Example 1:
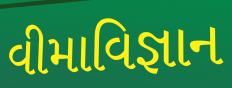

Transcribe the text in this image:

વીમાવિજ્ઞાન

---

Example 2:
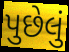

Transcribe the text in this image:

પુછેલું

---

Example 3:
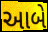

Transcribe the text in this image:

આબે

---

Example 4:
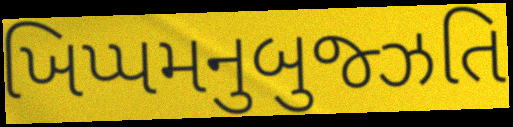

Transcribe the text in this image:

ખિપ્પમનુબુજ્ઝતિ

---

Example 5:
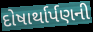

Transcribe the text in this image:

દોષાર્થાર્પણની